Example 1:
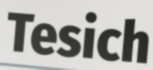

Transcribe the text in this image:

Tesich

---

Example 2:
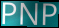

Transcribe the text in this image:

PNP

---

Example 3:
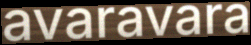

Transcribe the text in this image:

avaravara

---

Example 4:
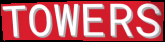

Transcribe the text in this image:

TOWERS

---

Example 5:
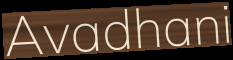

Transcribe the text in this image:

Avadhani